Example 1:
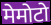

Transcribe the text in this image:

मेमोटो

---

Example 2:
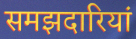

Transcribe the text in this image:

समझदारियां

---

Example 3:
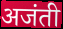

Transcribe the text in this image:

अजंती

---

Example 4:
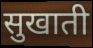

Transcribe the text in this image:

सुखाती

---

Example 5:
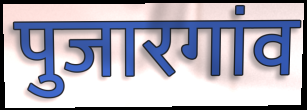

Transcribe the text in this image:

पुजारगांव